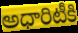
అధారిటీకి